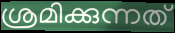
ശ്രമിക്കുന്നത്